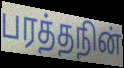
பரத்தநின்